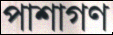
পাশাগণ